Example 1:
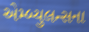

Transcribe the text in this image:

એમ્બ્યુલન્સના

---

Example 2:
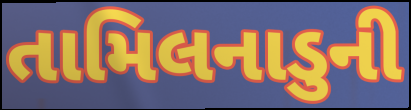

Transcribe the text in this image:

તામિલનાડુની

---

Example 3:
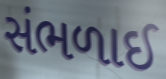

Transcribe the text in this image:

સંભળાઈ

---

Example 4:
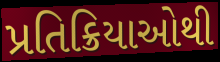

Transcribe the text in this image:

પ્રતિક્રિયાઓથી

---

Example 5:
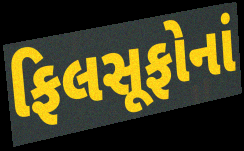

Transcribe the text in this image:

ફિલસૂફોનાં